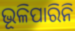
ଭୂଳିପାରିନି